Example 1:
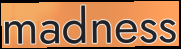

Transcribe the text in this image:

madness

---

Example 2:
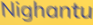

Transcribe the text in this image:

Nighantu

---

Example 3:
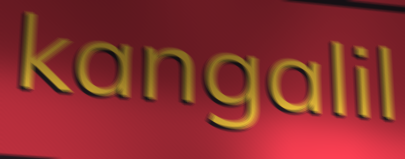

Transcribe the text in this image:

kangalil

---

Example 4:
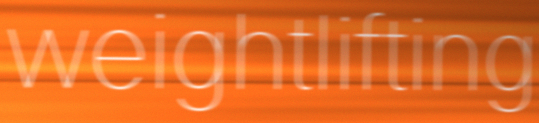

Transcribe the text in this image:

weightlifting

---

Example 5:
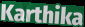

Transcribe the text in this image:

Karthika